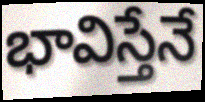
భావిస్తేనే